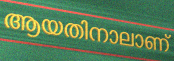
ആയതിനാലാണ്